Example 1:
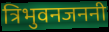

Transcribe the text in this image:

त्रिभुवनजननी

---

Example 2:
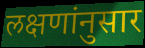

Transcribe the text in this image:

लक्षणांनुसार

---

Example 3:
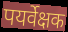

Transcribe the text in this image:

पयर्वेक्षक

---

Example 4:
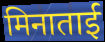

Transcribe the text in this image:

मिनाताई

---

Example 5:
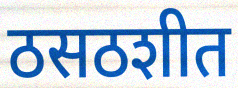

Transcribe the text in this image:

ठसठशीत